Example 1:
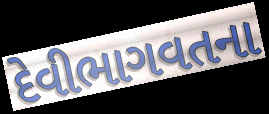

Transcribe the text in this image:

દેવીભાગવતના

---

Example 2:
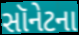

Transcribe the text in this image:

સૉનેટના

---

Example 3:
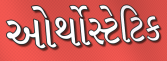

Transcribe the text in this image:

ઓર્થોસ્ટેટિક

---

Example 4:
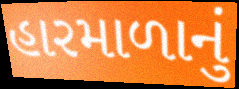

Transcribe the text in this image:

હારમાળાનું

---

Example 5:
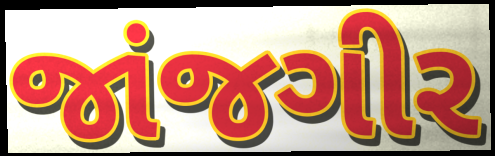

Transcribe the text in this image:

જાંજગીર